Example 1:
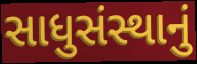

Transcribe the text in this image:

સાધુસંસ્થાનું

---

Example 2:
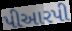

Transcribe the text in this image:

પીઆરપી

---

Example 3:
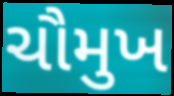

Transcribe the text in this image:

ચૌમુખ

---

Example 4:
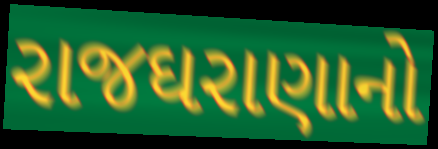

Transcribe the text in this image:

રાજઘરાણાનો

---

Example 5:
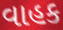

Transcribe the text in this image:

વાહક